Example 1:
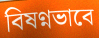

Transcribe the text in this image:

বিষণ্নভাবে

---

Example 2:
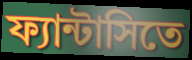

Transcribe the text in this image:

ফ্যান্টাসিতে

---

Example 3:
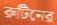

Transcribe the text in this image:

রুটিনের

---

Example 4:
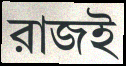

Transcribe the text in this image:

রাজই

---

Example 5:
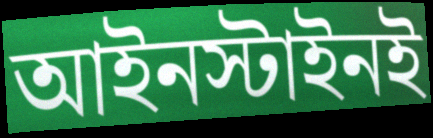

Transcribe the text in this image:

আইনস্টাইনই